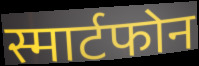
स्मार्टफोन